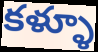
కళ్ళూ